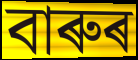
বাৰুৰ